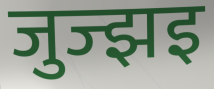
जुज्झइ